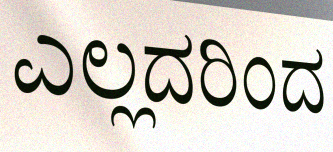
ಎಲ್ಲದರಿಂದ